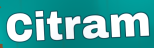
Citram